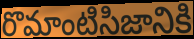
రొమాంటిసిజానికి